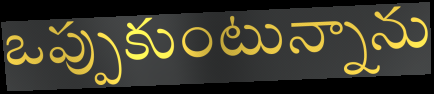
ఒప్పుకుంటున్నాను